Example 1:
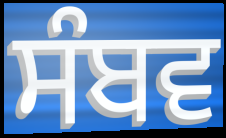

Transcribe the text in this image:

ਸੰਬਵ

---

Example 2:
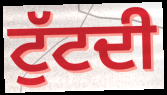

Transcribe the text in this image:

ਟੁੱਟਦੀ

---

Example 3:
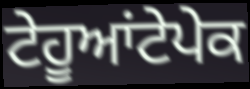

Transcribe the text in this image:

ਟੇਹੂਆਂਟੇਪੇਕ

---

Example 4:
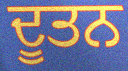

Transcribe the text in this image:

ਦੂਤਨ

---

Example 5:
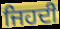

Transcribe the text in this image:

ਜਿਹਦੀ